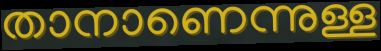
താനാണെന്നുള്ള